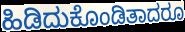
ಹಿಡಿದುಕೊಂಡಿತಾದರೂ